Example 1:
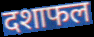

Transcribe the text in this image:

दशाफल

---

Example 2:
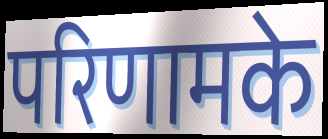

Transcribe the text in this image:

परिणामके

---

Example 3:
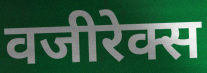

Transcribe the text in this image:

वजीरेक्स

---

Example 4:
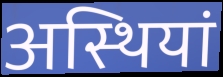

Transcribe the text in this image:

अस्थियां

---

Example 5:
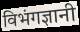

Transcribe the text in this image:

विभंगज्ञानी